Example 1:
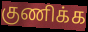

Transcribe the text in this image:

குணிக்க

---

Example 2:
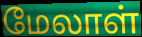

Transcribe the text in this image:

மேலாள்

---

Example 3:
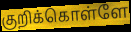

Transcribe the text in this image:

குறிக்கொள்ளே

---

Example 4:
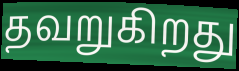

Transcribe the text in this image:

தவறுகிறது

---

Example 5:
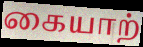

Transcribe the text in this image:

கையாற்